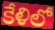
కేళిలో